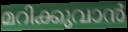
മറിക്കുവാൻ